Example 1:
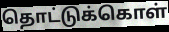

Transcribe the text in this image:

தொட்டுக்கொள்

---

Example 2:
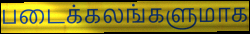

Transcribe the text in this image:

படைக்கலங்களுமாக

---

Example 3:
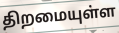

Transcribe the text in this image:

திறமையுள்ள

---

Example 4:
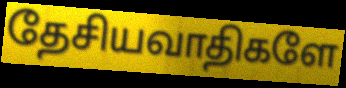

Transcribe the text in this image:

தேசியவாதிகளே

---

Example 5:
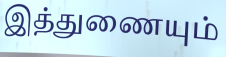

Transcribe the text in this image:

இத்துணையும்